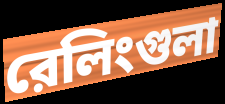
রেলিংগুলা